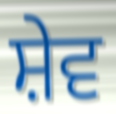
ਸ਼ੇਵ